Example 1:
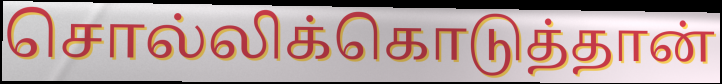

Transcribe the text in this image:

சொல்லிக்கொடுத்தான்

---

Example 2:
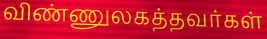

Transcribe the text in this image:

விண்ணுலகத்தவர்கள்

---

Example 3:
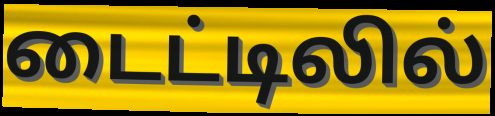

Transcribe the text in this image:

டைட்டிலில்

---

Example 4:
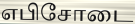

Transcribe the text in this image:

எபிசோடை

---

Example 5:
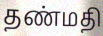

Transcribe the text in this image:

தண்மதி